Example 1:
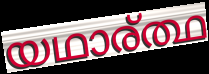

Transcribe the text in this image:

യഥാര്ത്ഥ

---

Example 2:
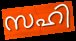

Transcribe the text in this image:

സഹി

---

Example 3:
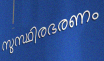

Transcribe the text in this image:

സുസ്ഥിരഭരണം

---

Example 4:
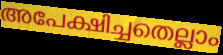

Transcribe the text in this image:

അപേക്ഷിച്ചതെല്ലാം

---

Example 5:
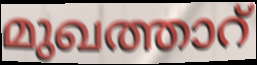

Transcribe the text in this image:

മുഖത്താറ്